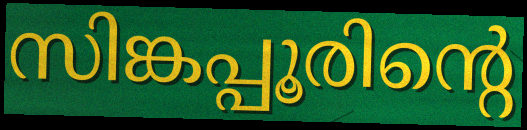
സിങ്കപ്പൂരിന്റെ